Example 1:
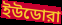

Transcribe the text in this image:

ইউডোরা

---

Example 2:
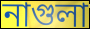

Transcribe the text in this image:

নাগুলা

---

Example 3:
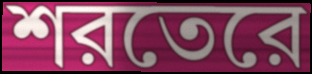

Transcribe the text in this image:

শরতেরে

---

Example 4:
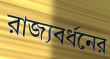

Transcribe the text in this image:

রাজ্যবর্ধনের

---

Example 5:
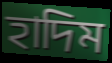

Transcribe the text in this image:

হাদিম